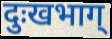
दुःखभाग्